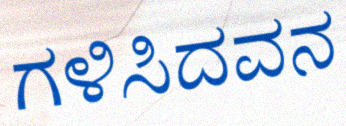
ಗಳಿಸಿದವನ